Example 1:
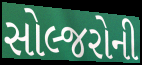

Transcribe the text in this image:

સોલ્જરોની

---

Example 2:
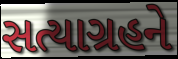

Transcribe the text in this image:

સત્યાગ્રહને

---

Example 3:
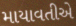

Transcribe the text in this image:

માયાવતીએ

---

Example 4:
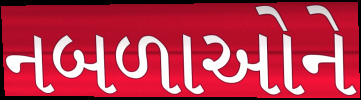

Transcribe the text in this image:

નબળાઓને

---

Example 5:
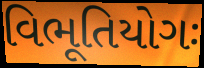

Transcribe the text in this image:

વિભૂતિયોગઃ